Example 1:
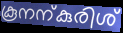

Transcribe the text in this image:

കൂനന്കുരിശ്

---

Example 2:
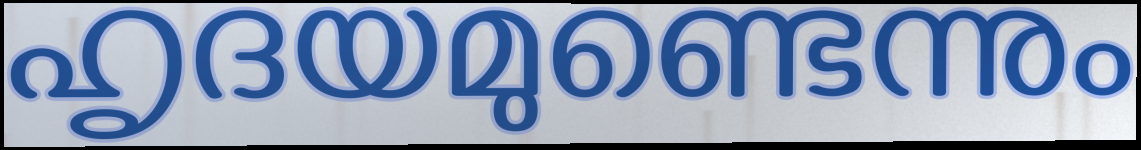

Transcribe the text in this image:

ഹൃദയമുണ്ടെന്നും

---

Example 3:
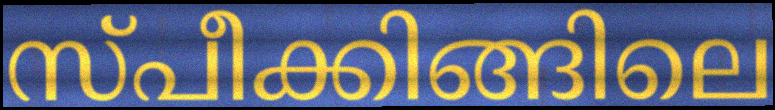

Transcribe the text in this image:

സ്പീക്കിങ്ങിലെ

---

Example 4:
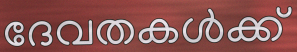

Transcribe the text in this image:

ദേവതകൾക്ക്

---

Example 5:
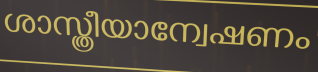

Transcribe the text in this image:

ശാസ്ത്രീയാന്വേഷണം